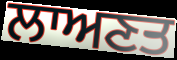
ਲਾਅਣਤ